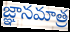
జ్ఞానమాత్ర